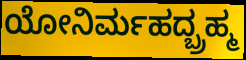
ಯೋನಿರ್ಮಹದ್ಬ್ರಹ್ಮ